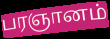
பரஞானம்